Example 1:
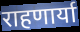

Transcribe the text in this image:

राहणार्या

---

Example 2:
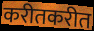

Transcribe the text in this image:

करीतकरीत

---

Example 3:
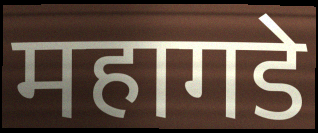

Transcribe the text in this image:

महागडे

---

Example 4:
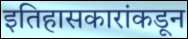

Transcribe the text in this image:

इतिहासकारांकडून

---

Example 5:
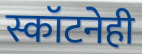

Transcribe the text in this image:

स्कॉटनेही